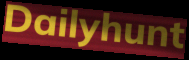
Dailyhunt